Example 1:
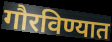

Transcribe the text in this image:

गौरविण्यात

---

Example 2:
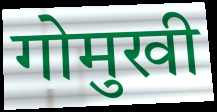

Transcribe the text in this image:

गोमुखी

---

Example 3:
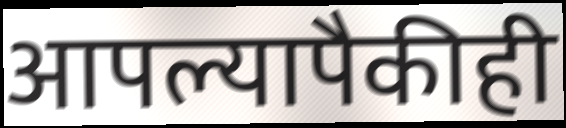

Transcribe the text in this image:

आपल्यापैकीही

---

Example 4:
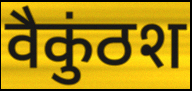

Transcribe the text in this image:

वैकुंठश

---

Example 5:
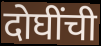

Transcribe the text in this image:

दोघींची